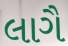
લાગૈ